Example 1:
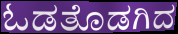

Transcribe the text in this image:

ಓಡತೊಡಗಿದ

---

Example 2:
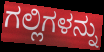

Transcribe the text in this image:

ಗಲ್ಲಿಗಳನ್ನು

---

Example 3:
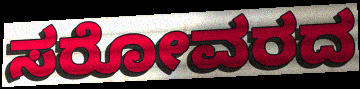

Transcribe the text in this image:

ಸರೋವರದ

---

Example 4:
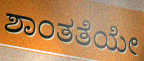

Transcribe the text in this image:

ಶಾಂತತೆಯೇ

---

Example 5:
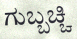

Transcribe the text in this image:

ಗುಬ್ಬಚ್ಚಿ